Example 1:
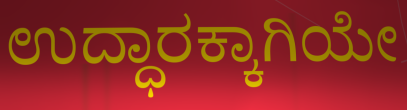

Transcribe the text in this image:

ಉದ್ಧಾರಕ್ಕಾಗಿಯೇ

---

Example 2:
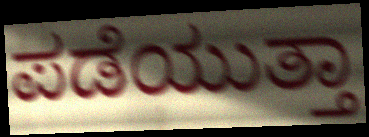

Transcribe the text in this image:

ಪಡೆಯುತ್ತಾ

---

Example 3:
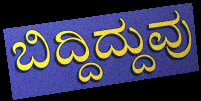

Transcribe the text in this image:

ಬಿದ್ದಿದ್ದುವು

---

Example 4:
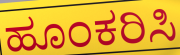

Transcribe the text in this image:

ಹೂಂಕರಿಸಿ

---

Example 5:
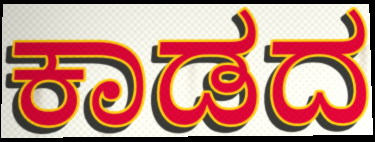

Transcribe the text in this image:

ಕಾಡದ